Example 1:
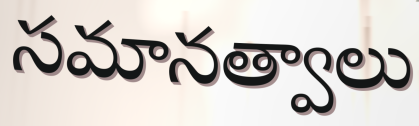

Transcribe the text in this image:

సమానత్వాలు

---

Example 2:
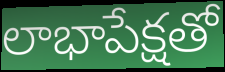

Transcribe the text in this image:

లాభాపేక్షతో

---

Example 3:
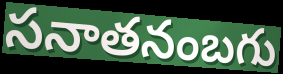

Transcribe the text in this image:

సనాతనంబగు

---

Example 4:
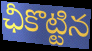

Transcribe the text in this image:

ఛీకొట్టిన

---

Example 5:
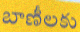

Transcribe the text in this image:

బాణీలకు